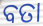
ବତା